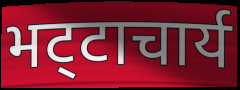
भट्‍टाचार्य